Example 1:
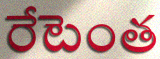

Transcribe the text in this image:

రేటెంత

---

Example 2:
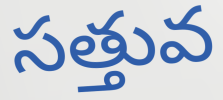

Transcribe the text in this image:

సత్తువ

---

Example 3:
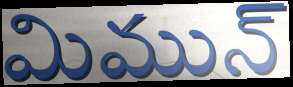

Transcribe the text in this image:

మిమున్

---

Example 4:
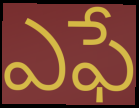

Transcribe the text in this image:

ఎఫే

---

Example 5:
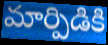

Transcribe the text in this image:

మార్పిడికి